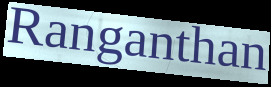
Ranganthan